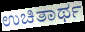
ಉಚಿತಾರ್ಥ